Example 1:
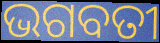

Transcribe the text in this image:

ଭଗବତୀ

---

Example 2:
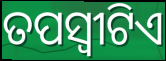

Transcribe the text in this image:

ତପସ୍ୱୀଟିଏ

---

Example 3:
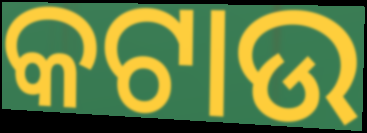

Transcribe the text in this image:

କଟାଉ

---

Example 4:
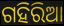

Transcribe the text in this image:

ଗହିରିଆ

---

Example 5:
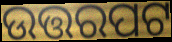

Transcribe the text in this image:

ଉତ୍ତରପଟ